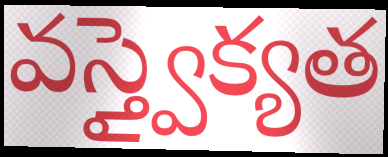
వస్త్వైక్యత